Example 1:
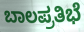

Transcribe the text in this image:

ಬಾಲಪ್ರತಿಭೆ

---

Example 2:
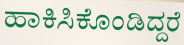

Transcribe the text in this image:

ಹಾಕಿಸಿಕೊಂಡಿದ್ದರೆ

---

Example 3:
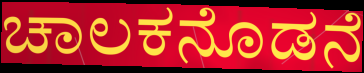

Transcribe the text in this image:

ಚಾಲಕನೊಡನೆ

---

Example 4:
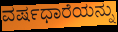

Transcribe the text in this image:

ವರ್ಷಧಾರೆಯನ್ನು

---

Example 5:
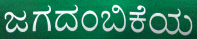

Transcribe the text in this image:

ಜಗದಂಬಿಕೆಯ